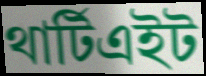
থার্টিএইট